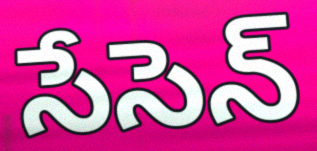
సేసెన్